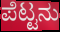
ಪೆಟ್ಟನು